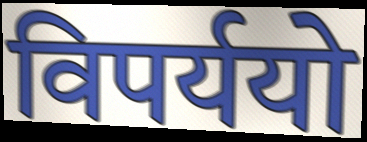
विपर्ययो